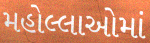
મહોલ્લાઓમાં